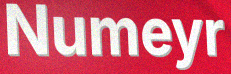
Numeyr